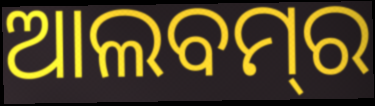
ଆଲବମ୍‌ର